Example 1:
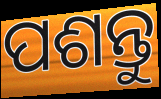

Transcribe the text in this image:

ପଶନ୍ତୁ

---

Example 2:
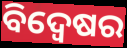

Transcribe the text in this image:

ବିଦ୍ୱେଷର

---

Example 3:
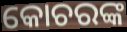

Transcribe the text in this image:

କୋଚରଙ୍କ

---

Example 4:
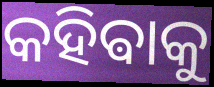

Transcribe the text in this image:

କହିଵାକୁ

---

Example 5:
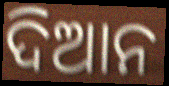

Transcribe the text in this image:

ଦିଆନ